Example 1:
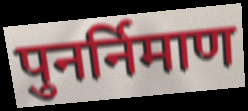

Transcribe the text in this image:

पुनर्निमाण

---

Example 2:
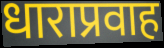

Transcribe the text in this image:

धाराप्रवाह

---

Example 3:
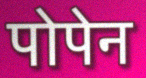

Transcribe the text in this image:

पोपेन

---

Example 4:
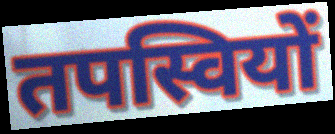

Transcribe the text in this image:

तपस्वियों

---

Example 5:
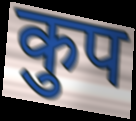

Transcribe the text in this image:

कुप